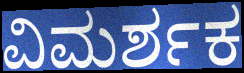
ವಿಮರ್ಶಕ